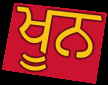
ਖੂਨ